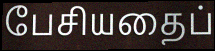
பேசியதைப்